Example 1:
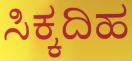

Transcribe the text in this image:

ಸಿಕ್ಕದಿಹ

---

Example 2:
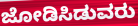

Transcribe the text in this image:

ಜೋಡಿಸಿಡುವರು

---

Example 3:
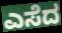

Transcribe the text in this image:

ಎಸೆದ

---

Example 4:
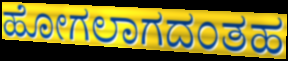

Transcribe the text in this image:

ಹೋಗಲಾಗದಂತಹ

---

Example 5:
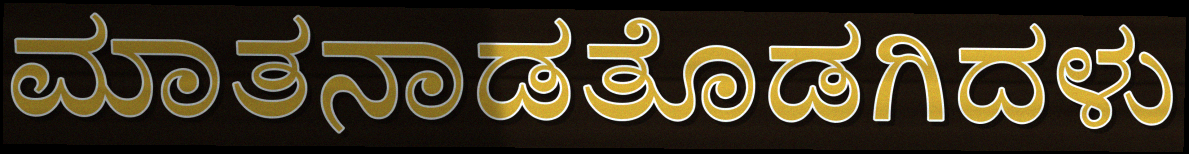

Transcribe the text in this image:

ಮಾತನಾಡತೊಡಗಿದಳು